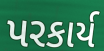
પરકાર્ય